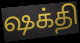
ஷக்தி